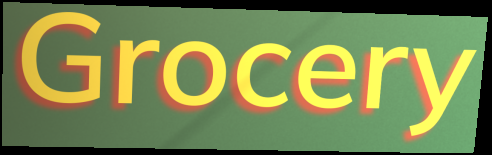
Grocery